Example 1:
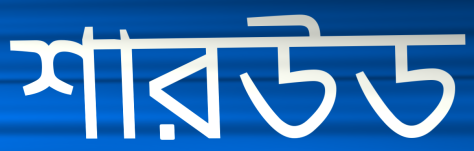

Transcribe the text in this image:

শারউড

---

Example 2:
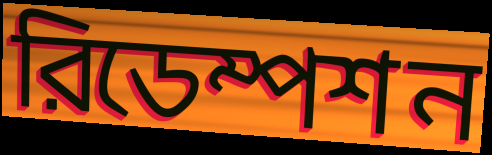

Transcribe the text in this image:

রিডেম্পশন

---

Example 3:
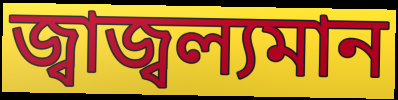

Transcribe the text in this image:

জ্বাজ্বল্যমান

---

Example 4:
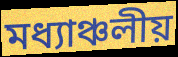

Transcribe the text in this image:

মধ্যাঞ্চলীয়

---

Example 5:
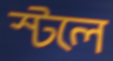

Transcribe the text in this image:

স্টলে